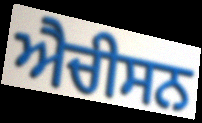
ਐਚੀਸਨ